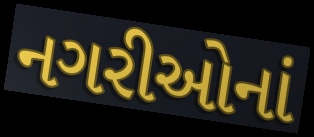
નગરીઓનાં